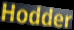
Hodder